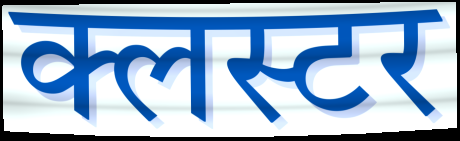
क्लस्टर